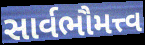
સાર્વભૌમત્ત્વ